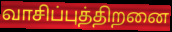
வாசிப்புத்திறனை